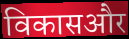
विकासऔर